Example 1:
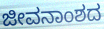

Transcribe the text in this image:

ಜೀವನಾಂಶದ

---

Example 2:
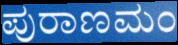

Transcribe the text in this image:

ಪುರಾಣಮಂ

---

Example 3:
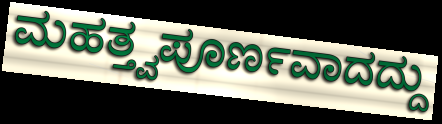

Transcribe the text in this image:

ಮಹತ್ತ್ವಪೂರ್ಣವಾದದ್ದು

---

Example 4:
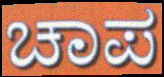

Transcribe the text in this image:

ಚಾಪ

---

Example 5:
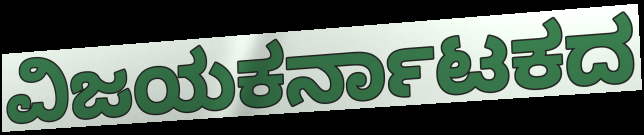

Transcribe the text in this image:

ವಿಜಯಕರ್ನಾಟಕದ